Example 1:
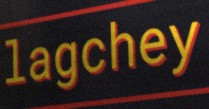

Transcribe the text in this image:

lagchey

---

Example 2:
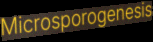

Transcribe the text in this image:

Microsporogenesis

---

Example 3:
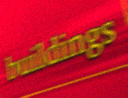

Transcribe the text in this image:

buildings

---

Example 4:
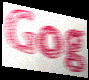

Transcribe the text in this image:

Gog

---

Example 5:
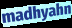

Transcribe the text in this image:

madhyahn